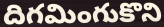
దిగమింగుకొని